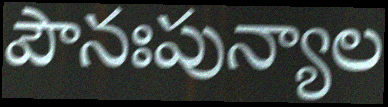
పౌనఃపున్యాల